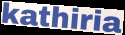
kathiria